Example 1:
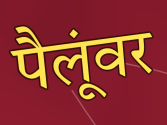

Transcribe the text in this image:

पैलूंवर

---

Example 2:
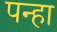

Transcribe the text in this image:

पन्हा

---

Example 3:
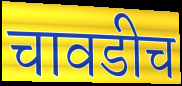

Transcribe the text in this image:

चावडीच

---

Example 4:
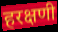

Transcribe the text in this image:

हरक्षणी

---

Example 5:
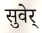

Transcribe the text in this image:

सुवेर्